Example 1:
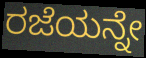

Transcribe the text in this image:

ರಜೆಯನ್ನೇ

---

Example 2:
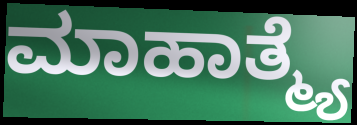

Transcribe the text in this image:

ಮಾಹಾತ್ಮ್ಯೆ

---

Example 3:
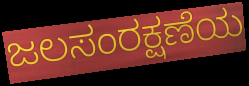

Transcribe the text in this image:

ಜಲಸಂರಕ್ಷಣೆಯ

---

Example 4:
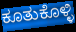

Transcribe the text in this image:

ಕೂತುಕೊಳ್ಳಿ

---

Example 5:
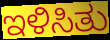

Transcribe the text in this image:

ಇಳಿಸಿತು